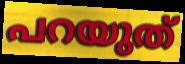
പറയുത്